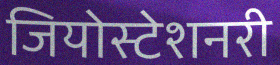
जियोस्टेशनरी